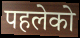
पहलेको